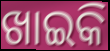
ଖାଇକି